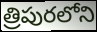
త్రిపురలోని